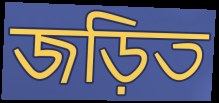
জড়িত